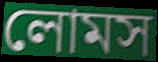
লোমস